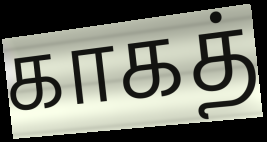
காகத்